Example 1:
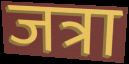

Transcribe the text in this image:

जत्रा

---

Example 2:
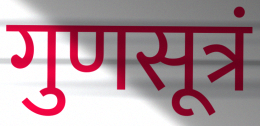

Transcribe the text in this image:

गुणसूत्रं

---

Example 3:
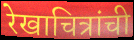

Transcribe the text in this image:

रेखाचित्रांची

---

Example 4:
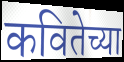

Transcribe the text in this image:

कवितेच्या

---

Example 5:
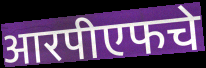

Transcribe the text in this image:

आरपीएफचे